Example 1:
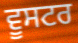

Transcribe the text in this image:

ਵੂਸਟਰ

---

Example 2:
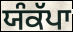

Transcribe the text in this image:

ਯੰਕੱਪਾ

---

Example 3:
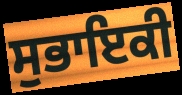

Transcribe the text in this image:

ਸੁਭਾਇਕੀ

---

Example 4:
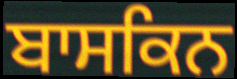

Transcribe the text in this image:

ਬਾਸਕਿਨ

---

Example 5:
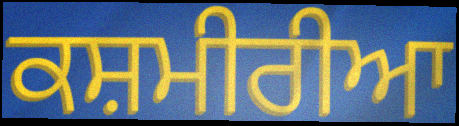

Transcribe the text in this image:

ਕਸ਼ਮੀਰੀਆ